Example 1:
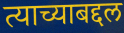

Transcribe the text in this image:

त्याच्याबद्दल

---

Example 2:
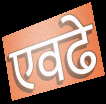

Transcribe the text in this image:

एवढे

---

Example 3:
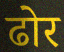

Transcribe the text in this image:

ढोर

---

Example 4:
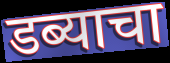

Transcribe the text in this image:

डब्याचा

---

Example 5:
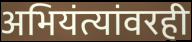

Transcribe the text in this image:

अभियंत्यांवरही